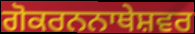
ਗੋਕਰਨਨਾਥੇਸ਼ਵਰ